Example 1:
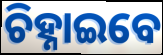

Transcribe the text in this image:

ଚିହ୍ନାଇବେ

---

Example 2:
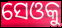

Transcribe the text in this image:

ସେଓକୁ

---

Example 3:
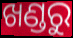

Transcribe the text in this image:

ଖଣ୍ଡରୁ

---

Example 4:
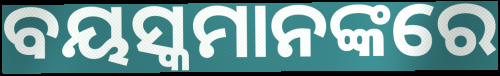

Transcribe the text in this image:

ବୟସ୍କମାନଙ୍କରେ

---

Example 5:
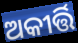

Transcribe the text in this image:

ଅକୀର୍ତ୍ତି